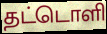
தட்டொளி